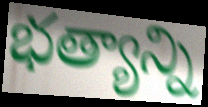
భత్యాన్ని